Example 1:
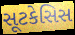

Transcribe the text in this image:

સૂટકેસિસ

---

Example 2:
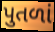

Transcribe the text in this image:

પુતળાં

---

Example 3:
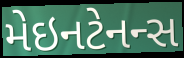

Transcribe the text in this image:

મેઇનટેનન્સ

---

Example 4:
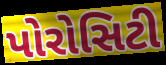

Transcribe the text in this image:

પોરોસિટી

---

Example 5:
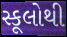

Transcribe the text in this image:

સ્કૂલોથી